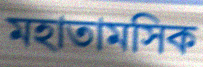
মহাতামসিক